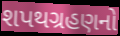
શપથગ્રહણનો